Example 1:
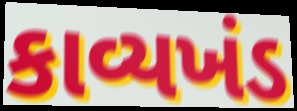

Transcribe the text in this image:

કાવ્યખંડ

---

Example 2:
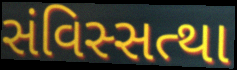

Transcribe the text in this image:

સંવિસ્સત્થા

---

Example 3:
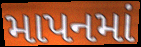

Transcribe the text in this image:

માપનમાં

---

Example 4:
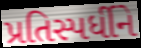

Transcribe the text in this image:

પ્રતિસ્પર્ધીને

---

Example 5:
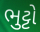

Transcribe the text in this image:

ભુટ્ટો